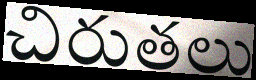
చిరుతలు